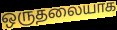
ஒருதலையாக